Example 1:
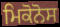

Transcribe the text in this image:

ਮਿਕੋਨੋਸ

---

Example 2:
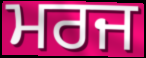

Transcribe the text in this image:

ਮਰਜ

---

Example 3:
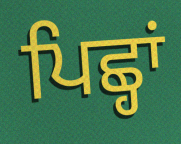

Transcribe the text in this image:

ਪਿਛ੍ਹਾਂ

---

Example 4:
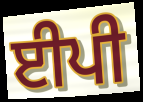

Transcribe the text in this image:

ਈਪੀ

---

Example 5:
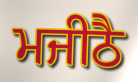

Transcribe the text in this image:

ਮਜੀਠੈ